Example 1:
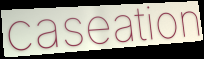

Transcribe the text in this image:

caseation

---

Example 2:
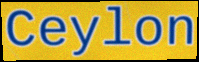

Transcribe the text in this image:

Ceylon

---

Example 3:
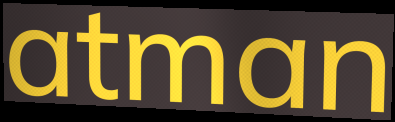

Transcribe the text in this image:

atman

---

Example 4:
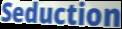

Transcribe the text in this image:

Seduction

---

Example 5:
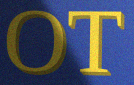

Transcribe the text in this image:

OT